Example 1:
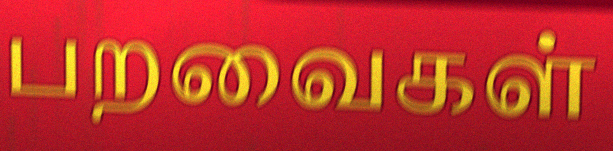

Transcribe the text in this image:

பறவைகள்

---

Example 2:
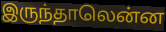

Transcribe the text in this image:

இருந்தாலென்ன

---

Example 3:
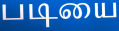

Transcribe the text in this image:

படியை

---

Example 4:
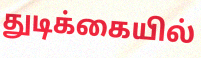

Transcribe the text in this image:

துடிக்கையில்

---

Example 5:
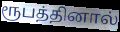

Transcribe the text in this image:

ரூபத்தினால்